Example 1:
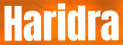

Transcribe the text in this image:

Haridra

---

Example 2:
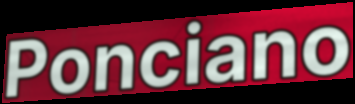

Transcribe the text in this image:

Ponciano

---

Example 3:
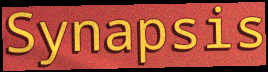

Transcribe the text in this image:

Synapsis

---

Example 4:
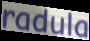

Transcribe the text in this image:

radula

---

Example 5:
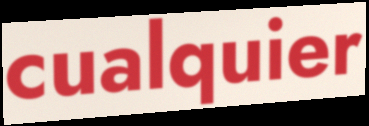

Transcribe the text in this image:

cualquier